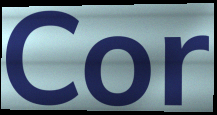
Cor